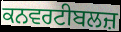
ਕਨਵਰਟੀਬਲਜ਼